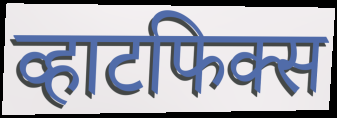
व्हाटफिक्स